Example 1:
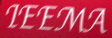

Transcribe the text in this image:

IEEMA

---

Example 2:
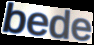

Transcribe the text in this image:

bede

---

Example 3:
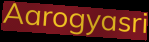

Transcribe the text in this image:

Aarogyasri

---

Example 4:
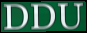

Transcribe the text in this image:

DDU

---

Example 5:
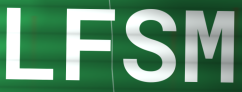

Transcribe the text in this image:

LFSM